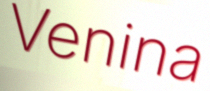
Venina